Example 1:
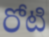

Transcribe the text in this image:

రోటి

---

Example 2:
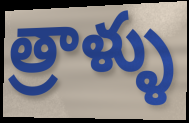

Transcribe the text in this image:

త్రాళ్ళు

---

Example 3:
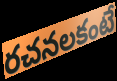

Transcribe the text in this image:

రచనలకంటే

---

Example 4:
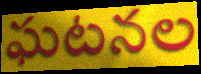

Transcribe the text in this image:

ఘటనల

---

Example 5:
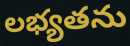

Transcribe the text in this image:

లభ్యతను